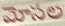
మోసల